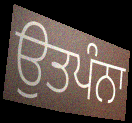
ਉਤਪੰਨਾ